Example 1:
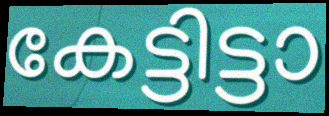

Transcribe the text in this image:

കേട്ടിട്ടാ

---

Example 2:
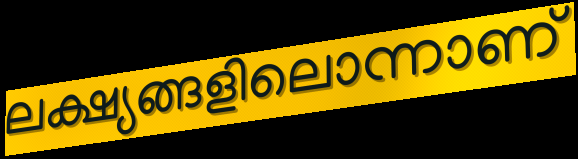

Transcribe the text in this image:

ലക്ഷ്യങ്ങളിലൊന്നാണ്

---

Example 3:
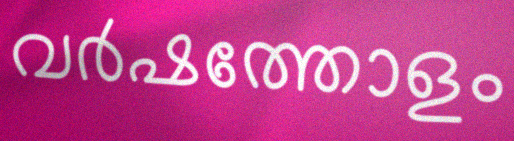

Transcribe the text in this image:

വർഷത്തോളം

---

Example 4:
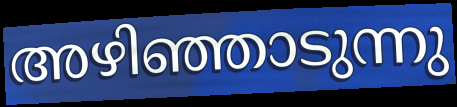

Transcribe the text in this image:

അഴിഞ്ഞാടുന്നു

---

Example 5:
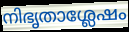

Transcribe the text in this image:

നിഭൃതാശ്ലേഷം